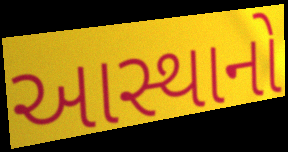
આસ્થાનો